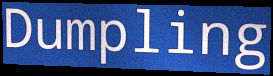
Dumpling